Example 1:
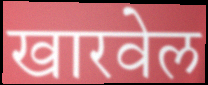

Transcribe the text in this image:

खारवेल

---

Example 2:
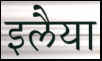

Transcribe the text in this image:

इलैया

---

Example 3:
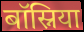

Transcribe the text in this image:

बॉस्निया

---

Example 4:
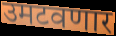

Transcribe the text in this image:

उमटवणार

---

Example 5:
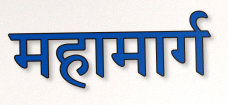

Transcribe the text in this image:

महामार्ग